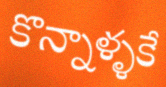
కొన్నాళ్ళకే